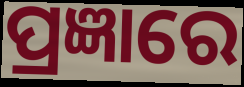
ପ୍ରଜ୍ଞାରେ